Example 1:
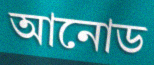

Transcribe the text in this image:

আনোড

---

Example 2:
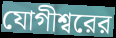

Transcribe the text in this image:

যোগীশ্বরের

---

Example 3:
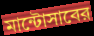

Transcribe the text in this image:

মান্টোসাবের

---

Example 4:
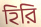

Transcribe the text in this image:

হিরি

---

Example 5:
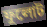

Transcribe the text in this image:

ফুলোট